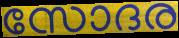
സോദര